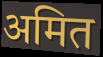
अमित